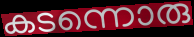
കടന്നൊരു